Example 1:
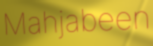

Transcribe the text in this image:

Mahjabeen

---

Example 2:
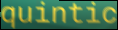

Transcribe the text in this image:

quintic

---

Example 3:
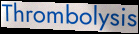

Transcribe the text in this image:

Thrombolysis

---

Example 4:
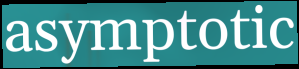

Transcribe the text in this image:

asymptotic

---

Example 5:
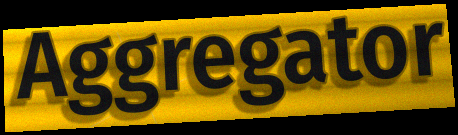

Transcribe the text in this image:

Aggregator